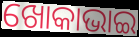
ଖୋକାଭାଇ